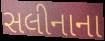
સલીનાના